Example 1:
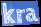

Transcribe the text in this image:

kra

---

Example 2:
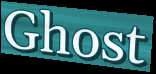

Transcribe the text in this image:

Ghost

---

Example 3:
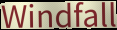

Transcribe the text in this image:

Windfall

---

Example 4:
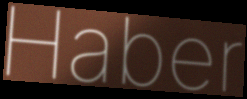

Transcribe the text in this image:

Haber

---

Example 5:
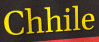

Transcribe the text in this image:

Chhile